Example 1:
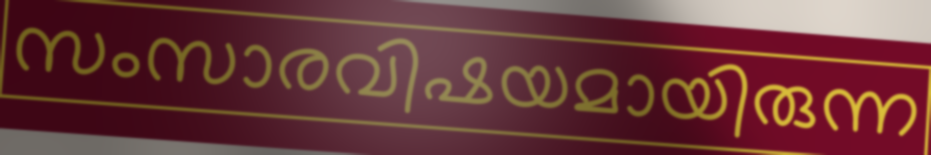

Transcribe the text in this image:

സംസാരവിഷയമായിരുന്ന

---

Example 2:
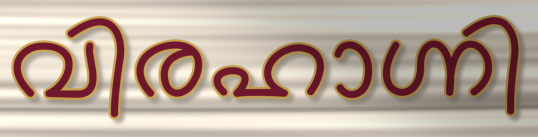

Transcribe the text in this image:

വിരഹാഗ്നി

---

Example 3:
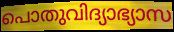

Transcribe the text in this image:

പൊതുവിദ്യാഭ്യാസ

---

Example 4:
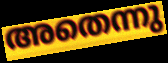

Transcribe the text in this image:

അതെന്നു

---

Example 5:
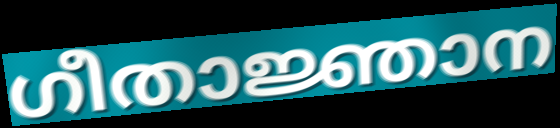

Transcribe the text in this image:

ഗീതാജ്ഞാന